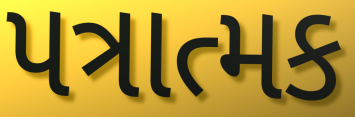
પત્રાત્મક